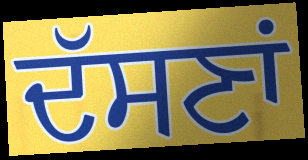
ਦੱਸਣਾਂ